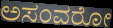
ಅಸಂವರೋ